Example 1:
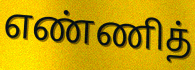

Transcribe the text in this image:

எண்ணித்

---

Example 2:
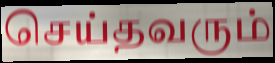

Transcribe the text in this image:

செய்தவரும்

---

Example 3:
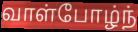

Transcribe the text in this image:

வாள்போழ்ந்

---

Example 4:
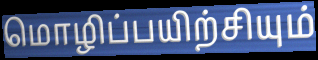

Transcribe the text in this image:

மொழிப்பயிற்சியும்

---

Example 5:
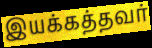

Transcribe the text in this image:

இயக்கத்தவர்